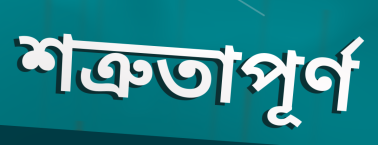
শত্রুতাপূর্ণ